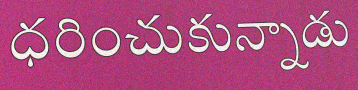
ధరించుకున్నాడు